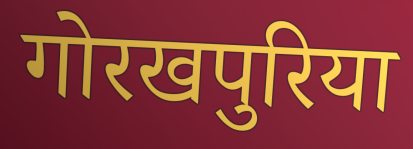
गोरखपुरिया